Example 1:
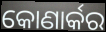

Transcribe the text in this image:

କୋଣାର୍କର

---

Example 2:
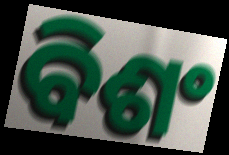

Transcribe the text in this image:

ବିଶଂ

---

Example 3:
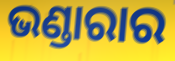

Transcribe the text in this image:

ଭଣ୍ଡାରାର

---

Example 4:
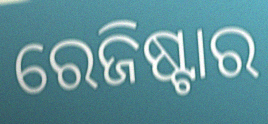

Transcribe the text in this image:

ରେଜିଷ୍ଟାର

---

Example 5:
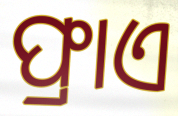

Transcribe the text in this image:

ଫ୍ରାଏ